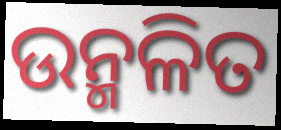
ଉନ୍ମଳିତ